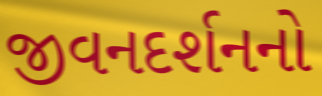
જીવનદર્શનનો